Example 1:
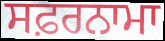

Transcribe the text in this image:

ਸਫ਼ਰਨਾਮਾ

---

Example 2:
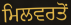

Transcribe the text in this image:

ਮਿਲਵਰਤੋਂ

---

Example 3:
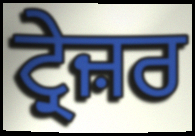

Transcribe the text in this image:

ਟ੍ਰੇਜ਼ਰ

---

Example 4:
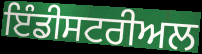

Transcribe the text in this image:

ਇੰਡੀਸਟਰੀਅਲ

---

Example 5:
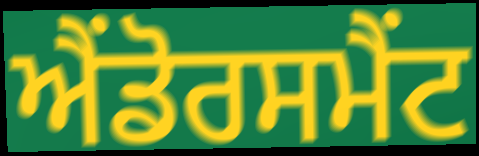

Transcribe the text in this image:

ਐਂਡੋਰਸਮੈਂਟ